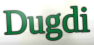
Dugdi